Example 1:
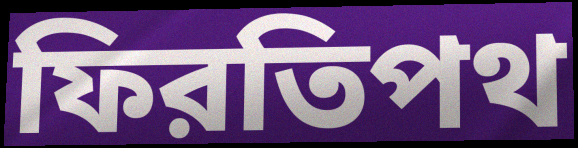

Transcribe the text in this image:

ফিরতিপথ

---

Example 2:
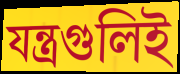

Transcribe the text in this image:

যন্ত্রগুলিই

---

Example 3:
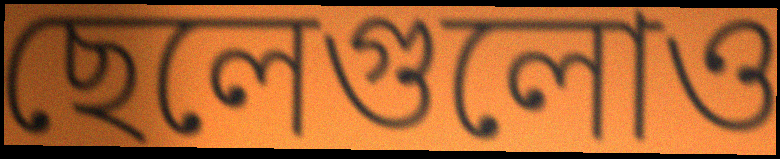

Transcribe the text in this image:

ছেলেগুলোও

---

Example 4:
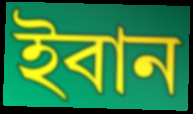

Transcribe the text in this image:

ইবান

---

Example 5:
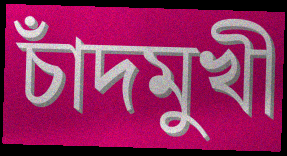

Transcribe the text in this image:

চাঁদমুখী